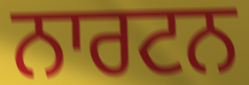
ਨਾਰਟਨ